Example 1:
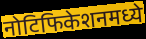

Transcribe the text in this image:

नोटिफिकेशनमध्ये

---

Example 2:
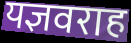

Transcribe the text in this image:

यज्ञवराह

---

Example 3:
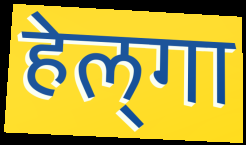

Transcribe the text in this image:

हेल्गा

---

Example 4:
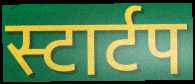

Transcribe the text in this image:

स्टार्टप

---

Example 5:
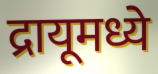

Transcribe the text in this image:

द्रायूमध्ये